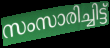
സംസാരിച്ചിട്ട്